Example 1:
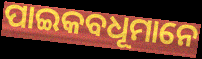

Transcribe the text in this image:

ପାଇକବଧୂମାନେ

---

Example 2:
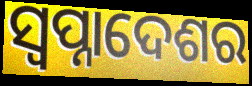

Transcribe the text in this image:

ସ୍ଵପ୍ନାଦେଶର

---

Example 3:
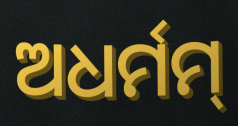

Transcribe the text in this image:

ଅଧର୍ମମ୍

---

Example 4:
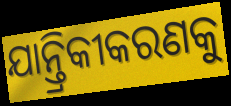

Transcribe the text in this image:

ଯାନ୍ତ୍ରିକୀକରଣକୁ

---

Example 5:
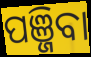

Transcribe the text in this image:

ପଞ୍ଜିବା